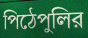
পিঠেপুলির